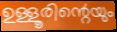
ഉള്ളൂരിന്റെയും